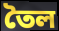
তৈল